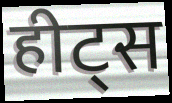
हीट्स